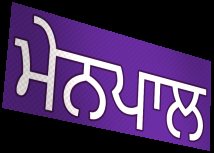
ਮੇਨਪਾਲ